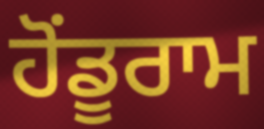
ਹੋਂਡੂਰਾਮ